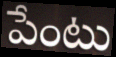
పేంటు